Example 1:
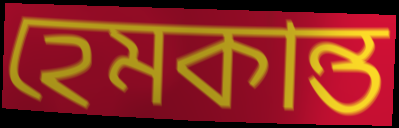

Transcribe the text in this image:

হেমকান্ত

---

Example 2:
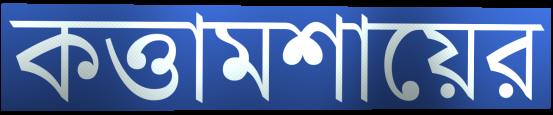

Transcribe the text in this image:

কত্তামশায়ের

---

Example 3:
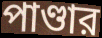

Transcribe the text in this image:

পাণ্ডার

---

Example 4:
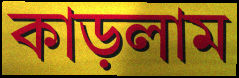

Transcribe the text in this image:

কাড়লাম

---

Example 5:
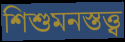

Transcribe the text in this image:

শিশুমনস্তত্ত্ব